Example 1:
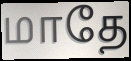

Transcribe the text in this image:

மாதே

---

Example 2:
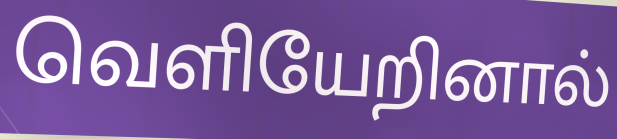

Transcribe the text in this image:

வெளியேறினால்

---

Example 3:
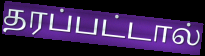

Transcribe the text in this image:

தரப்பட்டால்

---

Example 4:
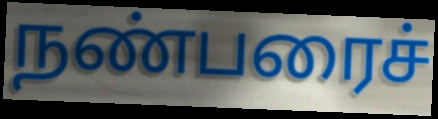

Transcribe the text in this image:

நண்பரைச்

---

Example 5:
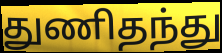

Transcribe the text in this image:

துணிதந்து